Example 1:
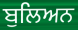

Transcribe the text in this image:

ਬੁਲਿਅਨ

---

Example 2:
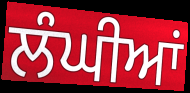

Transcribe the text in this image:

ਲੰਘੀਆਂ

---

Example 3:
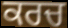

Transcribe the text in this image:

ਕਰਚ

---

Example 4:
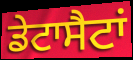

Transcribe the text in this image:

ਡੇਟਾਸੈਟਾਂ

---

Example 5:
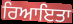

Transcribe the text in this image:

ਰਿਆਇਤਾ